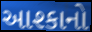
આશ્કાનો